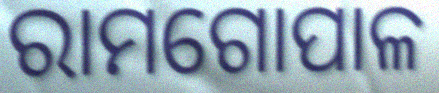
ରାମଗୋପାଳ